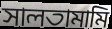
সালতামামি